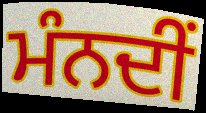
ਮੰਨਦੀਂ